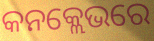
କନକ୍ଲେଭରେ